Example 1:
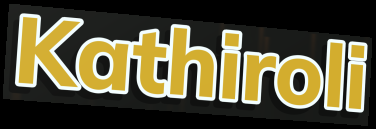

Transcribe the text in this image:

Kathiroli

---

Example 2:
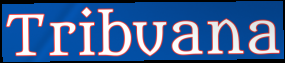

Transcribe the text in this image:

Tribuana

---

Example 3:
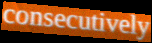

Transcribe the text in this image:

consecutively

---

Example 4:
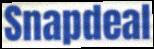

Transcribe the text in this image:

Snapdeal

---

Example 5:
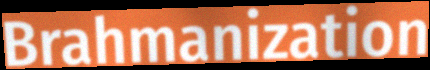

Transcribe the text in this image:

Brahmanization